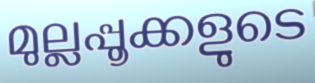
മുല്ലപ്പൂക്കളുടെ